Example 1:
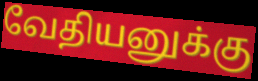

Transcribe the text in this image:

வேதியனுக்கு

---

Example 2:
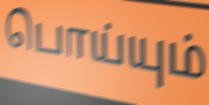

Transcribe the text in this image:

பொய்யும்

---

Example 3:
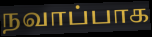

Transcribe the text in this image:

நவாப்பாக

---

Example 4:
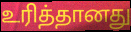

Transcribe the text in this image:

உரித்தானது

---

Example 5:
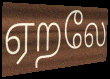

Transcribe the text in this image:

ஏறலே